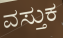
ವಸ್ತುಕ